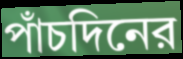
পাঁচদিনের